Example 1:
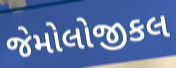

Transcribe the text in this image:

જેમોલોજીકલ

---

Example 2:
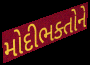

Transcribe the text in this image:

મોદીભક્તોને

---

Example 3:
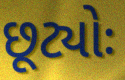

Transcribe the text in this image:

છૂટ્યોઃ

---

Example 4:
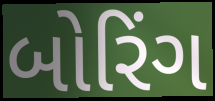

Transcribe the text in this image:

બોરિંગ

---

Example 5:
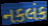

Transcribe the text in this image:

નકલંક